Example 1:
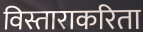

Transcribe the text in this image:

विस्ताराकरिता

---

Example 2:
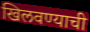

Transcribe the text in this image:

खिलवण्याची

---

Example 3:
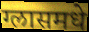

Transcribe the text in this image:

ग्लासमधे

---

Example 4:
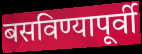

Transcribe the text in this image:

बसविण्यापूर्वी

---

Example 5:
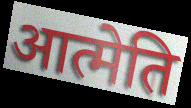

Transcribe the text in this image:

आत्मेति